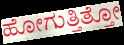
ಹೋಗುತ್ತಿತ್ತೋ